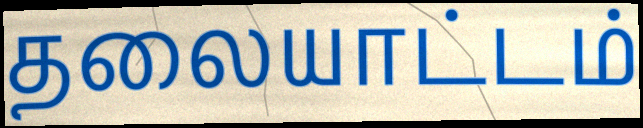
தலையாட்டம்